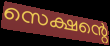
സെക്ഷന്റെ